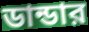
ডান্ডার